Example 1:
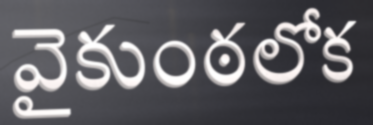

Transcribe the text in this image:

వైకుంఠలోక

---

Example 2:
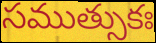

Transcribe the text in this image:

సముత్సుకః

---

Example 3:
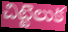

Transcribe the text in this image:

చిట్టెలుక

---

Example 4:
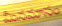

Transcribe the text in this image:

మీనమాసం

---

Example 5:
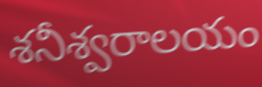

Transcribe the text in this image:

శనీశ్వరాలయం